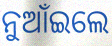
ନୁଆଁଇଲେ